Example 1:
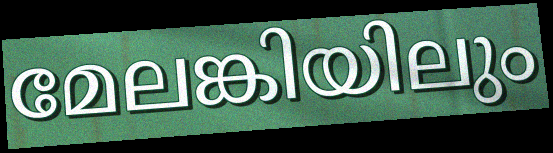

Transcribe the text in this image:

മേലങ്കിയിലും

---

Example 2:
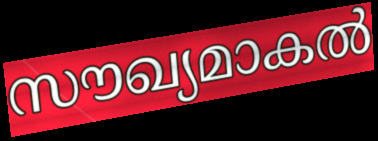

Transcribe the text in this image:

സൗഖ്യമാകൽ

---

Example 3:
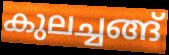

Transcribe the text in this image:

കുലച്ചങ്ങ്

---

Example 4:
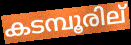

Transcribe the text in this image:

കടമ്പൂരില്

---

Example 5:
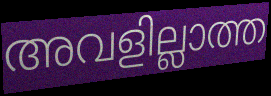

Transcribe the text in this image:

അവളില്ലാത്ത